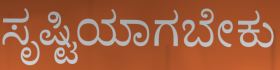
ಸೃಷ್ಟಿಯಾಗಬೇಕು